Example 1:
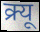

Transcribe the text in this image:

क्र्यू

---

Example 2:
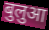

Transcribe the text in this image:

बुलुआ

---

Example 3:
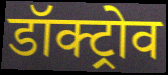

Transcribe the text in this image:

डॉक्ट्रोव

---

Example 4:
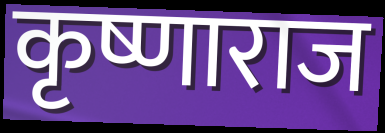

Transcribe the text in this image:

कृष्णाराज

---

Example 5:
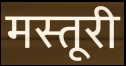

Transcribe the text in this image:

मस्तूरी